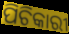
ପିଚିକାରୀ